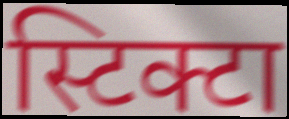
स्टिक्टा